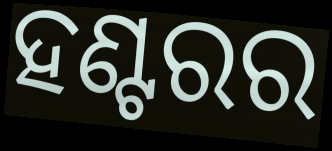
ହଣ୍ଟରର